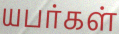
யபர்கள்